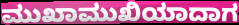
ಮುಖಾಮುಖಿಯಾದಾಗ